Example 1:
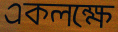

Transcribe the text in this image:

একলক্ষে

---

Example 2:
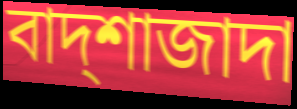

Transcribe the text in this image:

বাদ্শাজাদা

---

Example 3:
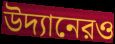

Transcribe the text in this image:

উদ্যানেরও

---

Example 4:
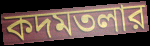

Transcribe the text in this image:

কদমতলার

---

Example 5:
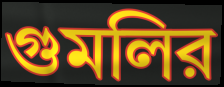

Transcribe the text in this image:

গুমলির